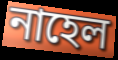
নাহেল